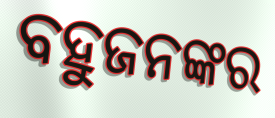
ବହୁଜନଙ୍କର